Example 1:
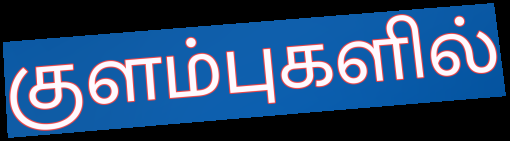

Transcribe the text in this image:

குளம்புகளில்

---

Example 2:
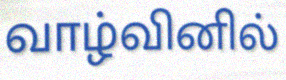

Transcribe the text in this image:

வாழ்வினில்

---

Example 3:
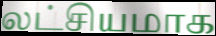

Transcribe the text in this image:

லட்சியமாக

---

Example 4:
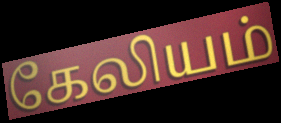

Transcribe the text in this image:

கேலியம்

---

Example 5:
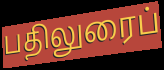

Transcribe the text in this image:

பதிலுரைப்